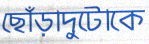
ছোঁড়াদুটোকে